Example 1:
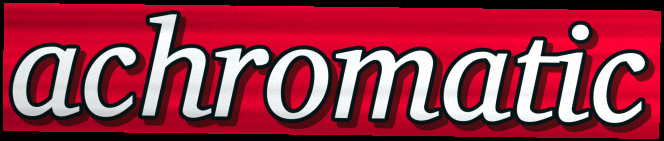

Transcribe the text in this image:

achromatic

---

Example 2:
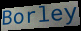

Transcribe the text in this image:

Borley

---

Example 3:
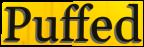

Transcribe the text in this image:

Puffed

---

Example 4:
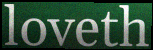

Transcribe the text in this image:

loveth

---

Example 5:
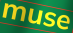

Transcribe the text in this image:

muse